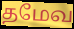
தமேவ